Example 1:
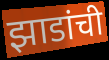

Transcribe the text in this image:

झाडांची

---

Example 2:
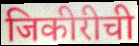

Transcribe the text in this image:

जिकीरीची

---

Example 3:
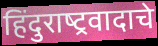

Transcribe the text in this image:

हिंदुराष्ट्रवादाचे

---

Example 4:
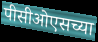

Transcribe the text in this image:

पीसीओएसच्या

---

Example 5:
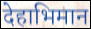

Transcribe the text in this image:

देहाभिमान